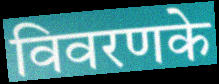
विवरणके